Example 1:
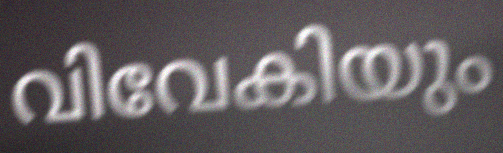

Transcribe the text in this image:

വിവേകിയും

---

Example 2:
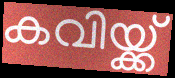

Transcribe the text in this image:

കവിയ്ക്ക്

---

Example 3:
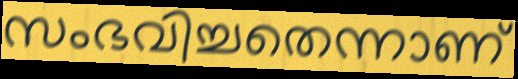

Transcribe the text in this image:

സംഭവിച്ചതെന്നാണ്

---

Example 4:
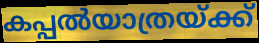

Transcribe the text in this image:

കപ്പൽയാത്രയ്ക്ക്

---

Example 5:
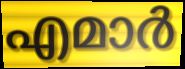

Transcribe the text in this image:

എമാർ